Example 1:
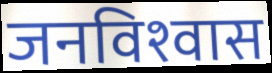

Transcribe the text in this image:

जनविश्वास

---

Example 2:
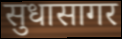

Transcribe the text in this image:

सुधासागर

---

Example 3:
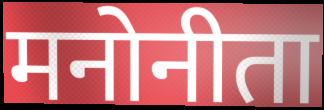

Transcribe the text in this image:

मनोनीता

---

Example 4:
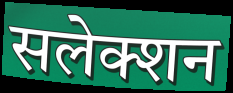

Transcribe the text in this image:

सलेक्शन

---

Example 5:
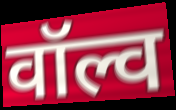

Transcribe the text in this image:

वॉल्व